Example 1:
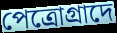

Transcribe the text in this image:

পেত্রোগ্রাদে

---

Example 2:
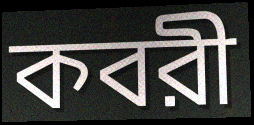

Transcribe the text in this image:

কবরী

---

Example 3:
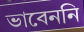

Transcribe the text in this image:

ভাবেননি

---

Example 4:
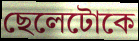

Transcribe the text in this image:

ছেলেটোকে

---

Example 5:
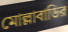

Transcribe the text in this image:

মোল্লাবাডির